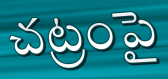
చట్రంపై